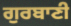
ਗੁਰਬਾਣੀ